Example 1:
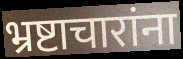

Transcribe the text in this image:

भ्रष्टाचारांना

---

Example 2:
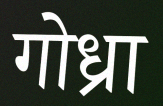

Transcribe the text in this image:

गोध्रा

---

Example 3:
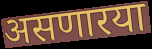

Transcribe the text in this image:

असणारया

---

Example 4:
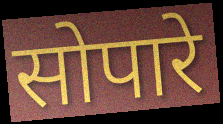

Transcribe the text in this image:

सोपारे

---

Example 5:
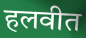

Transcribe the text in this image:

हलवीत